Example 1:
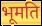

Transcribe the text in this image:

भूमति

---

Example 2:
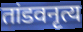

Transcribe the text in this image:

तांडवनृत्य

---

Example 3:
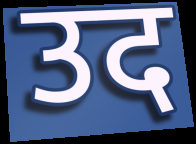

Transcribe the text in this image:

उद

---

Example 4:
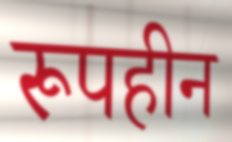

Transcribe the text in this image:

रूपहीन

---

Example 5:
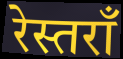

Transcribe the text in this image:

रेस्तराँ